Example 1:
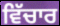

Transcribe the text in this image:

ਵਿੱਚਾਰ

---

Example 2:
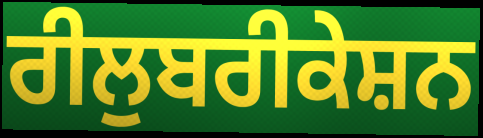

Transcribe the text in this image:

ਰੀਲੁਬਰੀਕੇਸ਼ਨ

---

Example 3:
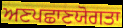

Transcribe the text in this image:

ਅਣਪਛਾਣਯੋਗਤਾ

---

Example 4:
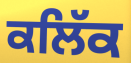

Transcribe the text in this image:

ਕਲਿੱਕ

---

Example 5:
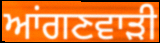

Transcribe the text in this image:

ਆਂਗਣਵਾੜੀ